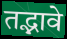
तद्भावे